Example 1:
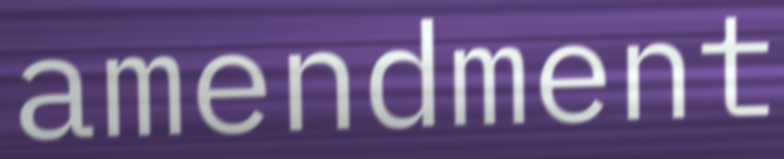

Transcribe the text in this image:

amendment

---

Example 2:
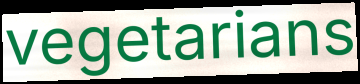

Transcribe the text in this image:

vegetarians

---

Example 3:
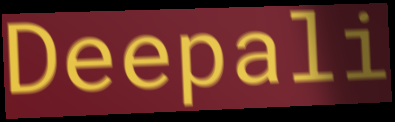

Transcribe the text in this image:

Deepali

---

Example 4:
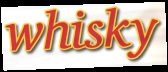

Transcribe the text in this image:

whisky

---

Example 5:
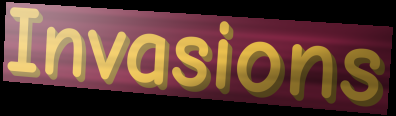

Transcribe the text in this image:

Invasions